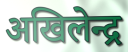
अखिलेन्द्र